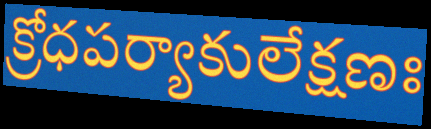
క్రోధపర్యాకులేక్షణః